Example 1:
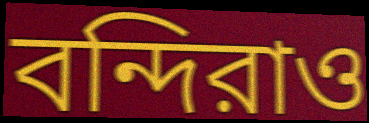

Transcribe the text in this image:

বন্দিরাও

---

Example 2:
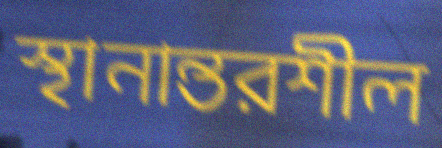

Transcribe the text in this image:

স্থানান্তরশীল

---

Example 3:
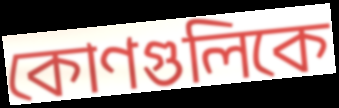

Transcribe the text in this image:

কোণগুলিকে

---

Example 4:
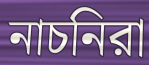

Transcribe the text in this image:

নাচনিরা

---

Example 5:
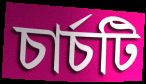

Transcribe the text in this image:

চার্চটি